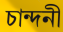
চান্দনী